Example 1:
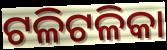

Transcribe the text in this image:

ଟଳିଟଳିକା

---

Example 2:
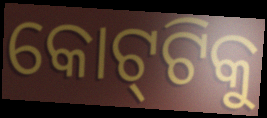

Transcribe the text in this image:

କୋଟ୍‌ଟିକୁ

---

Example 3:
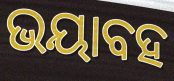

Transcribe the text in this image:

ଭୟାବହ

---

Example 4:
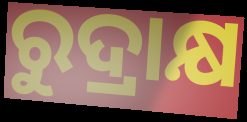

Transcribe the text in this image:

ରୁଦ୍ରାକ୍ଷ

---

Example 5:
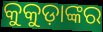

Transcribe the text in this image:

କୁକୁଡ଼ାଙ୍କର